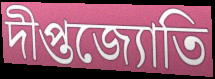
দীপ্তজ্যোতি